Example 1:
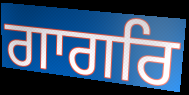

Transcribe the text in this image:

ਗਾਗਰਿ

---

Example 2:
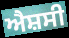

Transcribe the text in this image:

ਐਸ਼ਸੀ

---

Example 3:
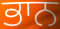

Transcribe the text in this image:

ਭਾਨ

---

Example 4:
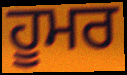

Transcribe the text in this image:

ਹੂਮਰ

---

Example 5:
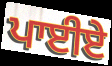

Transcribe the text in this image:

ਪਾਈਏ